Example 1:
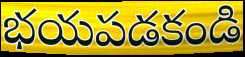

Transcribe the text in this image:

భయపడకండి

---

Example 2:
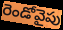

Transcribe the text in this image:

రెండోవైపు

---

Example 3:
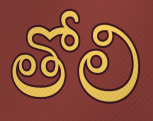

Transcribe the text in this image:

తోలి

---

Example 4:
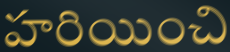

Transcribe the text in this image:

హరియించి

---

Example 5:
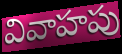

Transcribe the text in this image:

వివాహపు